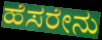
ಹೆಸರೇನು